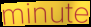
minute